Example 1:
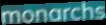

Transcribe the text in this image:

monarchs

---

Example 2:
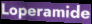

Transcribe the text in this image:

Loperamide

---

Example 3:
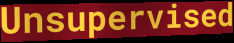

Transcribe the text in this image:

Unsupervised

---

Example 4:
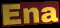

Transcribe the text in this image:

Ena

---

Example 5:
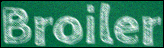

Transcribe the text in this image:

Broiler